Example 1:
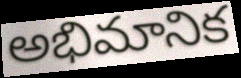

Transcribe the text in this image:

అభిమానిక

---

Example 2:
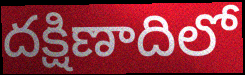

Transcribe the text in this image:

దక్షిణాదిలో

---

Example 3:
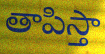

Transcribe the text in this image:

తాపిస్తా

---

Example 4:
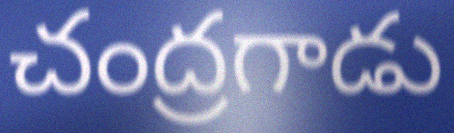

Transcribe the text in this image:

చంద్రగాడు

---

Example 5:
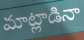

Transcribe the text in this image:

మాట్లాడినా